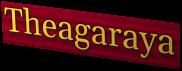
Theagaraya